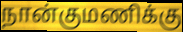
நான்குமணிக்கு